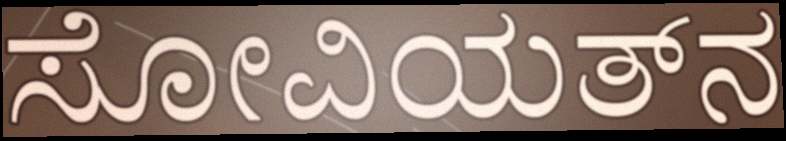
ಸೋವಿಯತ್‌ನ